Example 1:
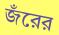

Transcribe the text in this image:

জঁরের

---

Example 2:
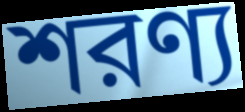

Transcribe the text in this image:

শরণ্য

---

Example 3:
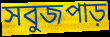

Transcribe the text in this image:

সবুজপাড়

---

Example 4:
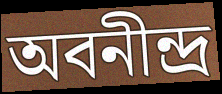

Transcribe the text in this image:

অবনীন্দ্র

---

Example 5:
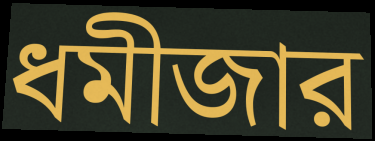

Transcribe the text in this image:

ধমীজার